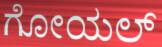
ಗೋಯಲ್